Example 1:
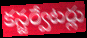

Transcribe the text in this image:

కన్జర్వేటర్లు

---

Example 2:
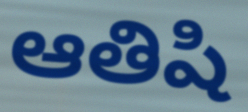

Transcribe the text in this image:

ఆతిషి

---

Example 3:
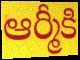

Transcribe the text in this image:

ఆర్మీకి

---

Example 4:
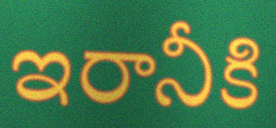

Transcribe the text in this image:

ఇరానీకి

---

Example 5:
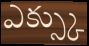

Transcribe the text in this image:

ఎక్స్కు